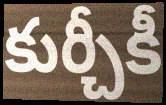
కుర్చీకీ